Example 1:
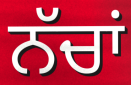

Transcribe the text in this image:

ਨੱਚਾਂ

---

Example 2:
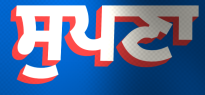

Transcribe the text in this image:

ਸੁਪਣਾ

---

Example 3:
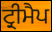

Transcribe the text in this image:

ਟ੍ਰੀਮੈਪ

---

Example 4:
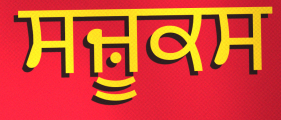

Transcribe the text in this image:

ਸਜ਼ੂਕਸ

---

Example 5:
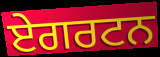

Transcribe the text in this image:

ਏਗਰਟਨ